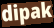
dipak